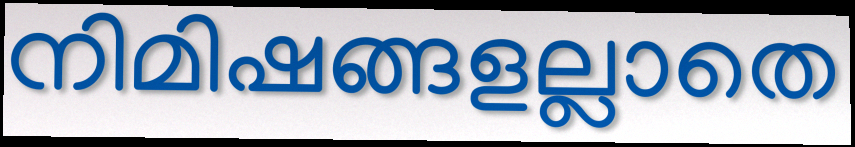
നിമിഷങ്ങളല്ലാതെ